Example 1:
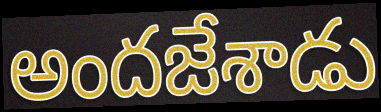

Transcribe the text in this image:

అందజేశాడు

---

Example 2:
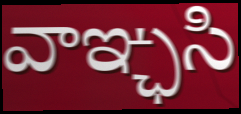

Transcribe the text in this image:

వాఞ్ఛసి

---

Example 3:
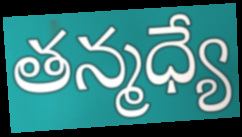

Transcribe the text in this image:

తన్మధ్యే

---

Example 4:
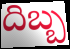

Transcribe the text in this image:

దిబ్బ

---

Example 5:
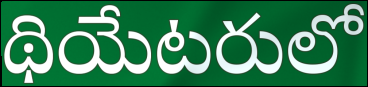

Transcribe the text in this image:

థియేటరులో